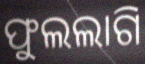
ଫୁଲଲାଗି